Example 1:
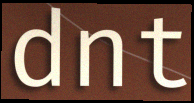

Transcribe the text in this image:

dnt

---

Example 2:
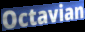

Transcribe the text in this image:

Octavian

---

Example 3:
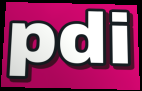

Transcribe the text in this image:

pdi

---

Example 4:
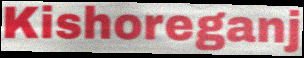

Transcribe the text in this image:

Kishoreganj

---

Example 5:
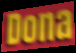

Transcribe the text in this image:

Dona